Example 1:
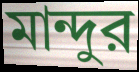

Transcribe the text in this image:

মান্দুর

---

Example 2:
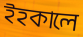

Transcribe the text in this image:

ইহকালে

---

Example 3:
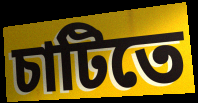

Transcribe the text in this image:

চাটিতে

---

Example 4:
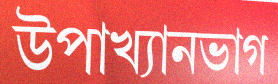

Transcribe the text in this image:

উপাখ্যানভাগ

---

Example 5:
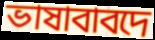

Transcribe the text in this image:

ভাষাবাবদে